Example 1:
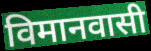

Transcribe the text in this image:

विमानवासी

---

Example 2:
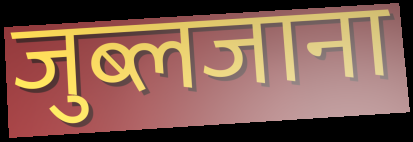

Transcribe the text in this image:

जुब्लजाना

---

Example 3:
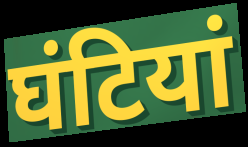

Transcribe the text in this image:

घंटियां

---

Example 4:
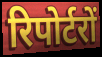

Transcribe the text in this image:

रिपोर्टरों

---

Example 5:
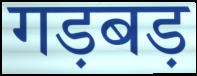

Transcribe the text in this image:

गड़बड़